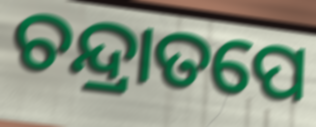
ଚନ୍ଦ୍ରାତପେ